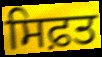
ਸਿਫ਼ਤ